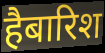
हैबारिश